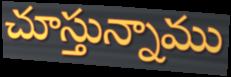
చూస్తున్నాము